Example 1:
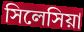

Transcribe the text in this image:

সিলেসিয়া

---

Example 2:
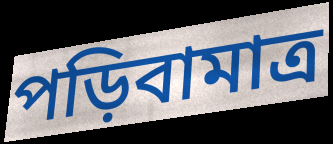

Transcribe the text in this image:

পড়িবামাত্র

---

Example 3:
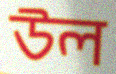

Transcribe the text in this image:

উল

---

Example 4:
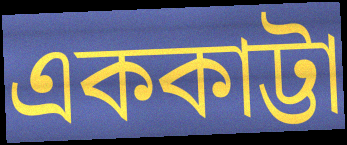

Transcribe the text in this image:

এককাট্টা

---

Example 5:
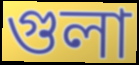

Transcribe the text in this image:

গুলা